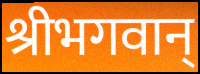
श्रीभगवान्